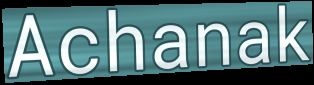
Achanak